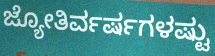
ಜ್ಯೋತಿರ್ವರ್ಷಗಳಷ್ಟು